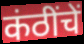
कंठींचें